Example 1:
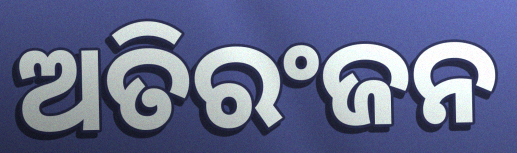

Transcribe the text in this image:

ଅତିରଂଜନ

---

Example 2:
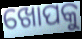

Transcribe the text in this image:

ଖୋପକୁ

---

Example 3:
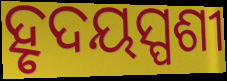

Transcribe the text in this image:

ହୃଦୟସ୍ପଶୀ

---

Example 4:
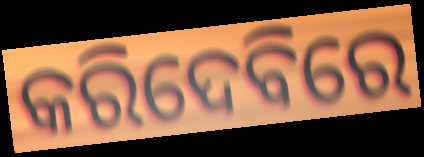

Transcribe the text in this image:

କରିଦେବିରେ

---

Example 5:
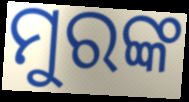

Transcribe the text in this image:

ମୁରଙ୍କ